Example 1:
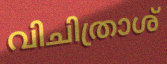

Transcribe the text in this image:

വിചിത്രാശ്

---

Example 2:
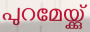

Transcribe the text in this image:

പുറമേയ്ക്കു്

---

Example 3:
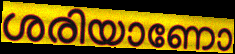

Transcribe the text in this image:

ശരിയാണോ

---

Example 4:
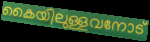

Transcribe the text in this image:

കൈയിലുള്ളവനോട്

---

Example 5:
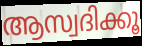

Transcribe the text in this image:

ആസ്വദിക്കൂ